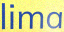
lima